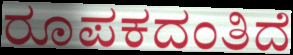
ರೂಪಕದಂತಿದೆ